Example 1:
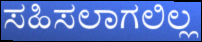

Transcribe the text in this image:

ಸಹಿಸಲಾಗಲಿಲ್ಲ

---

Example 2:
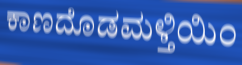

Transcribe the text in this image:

ಕಾಣದೊಡಮಳ್ತಿಯಿಂ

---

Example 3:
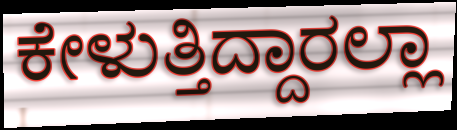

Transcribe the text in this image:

ಕೇಳುತ್ತಿದ್ದಾರಲ್ಲಾ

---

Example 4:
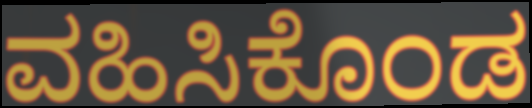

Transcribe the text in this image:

ವಹಿಸಿಕೊಂಡ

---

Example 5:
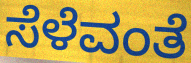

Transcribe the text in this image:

ಸೆಳೆವಂತೆ